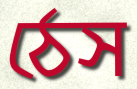
ঠেস